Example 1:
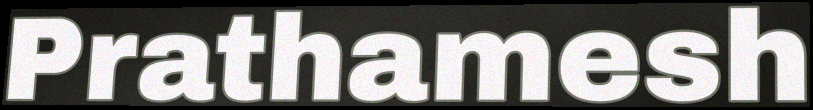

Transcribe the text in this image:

Prathamesh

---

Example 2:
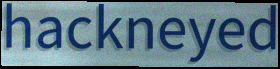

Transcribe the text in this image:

hackneyed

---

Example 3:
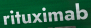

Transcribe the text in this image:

rituximab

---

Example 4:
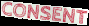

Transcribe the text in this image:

CONSENT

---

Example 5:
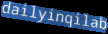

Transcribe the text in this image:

dailyinqilab